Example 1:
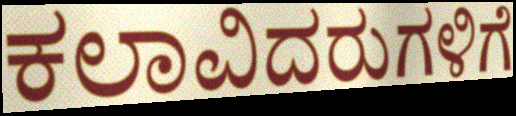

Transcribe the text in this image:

ಕಲಾವಿದರುಗಳಿಗೆ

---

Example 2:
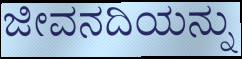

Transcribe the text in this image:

ಜೀವನದಿಯನ್ನು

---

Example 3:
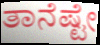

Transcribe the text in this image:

ತಾನೆಷ್ಟೇ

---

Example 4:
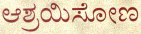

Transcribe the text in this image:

ಆಶ್ರಯಿಸೋಣ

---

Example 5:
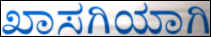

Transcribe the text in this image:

ಖಾಸಗಿಯಾಗಿ